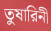
তুষারিনী